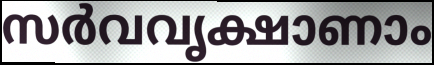
സർവവൃക്ഷാണാം